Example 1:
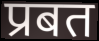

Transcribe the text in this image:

प्रबत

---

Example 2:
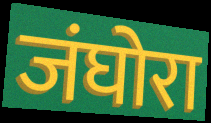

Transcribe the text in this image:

जंघोरा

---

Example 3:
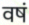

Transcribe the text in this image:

वषं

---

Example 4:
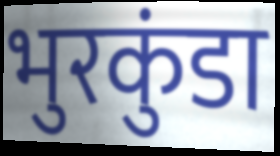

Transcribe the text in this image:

भुरकुंडा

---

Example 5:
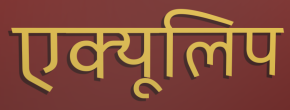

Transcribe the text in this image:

एक्यूलिप